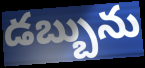
డబ్బును